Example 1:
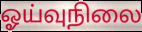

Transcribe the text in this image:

ஓய்வுநிலை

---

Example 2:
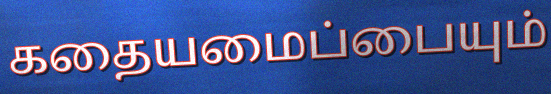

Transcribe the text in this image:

கதையமைப்பையும்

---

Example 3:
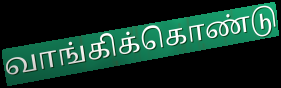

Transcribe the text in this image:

வாங்கிக்கொண்டு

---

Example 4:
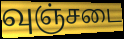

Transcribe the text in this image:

வுஞ்சடை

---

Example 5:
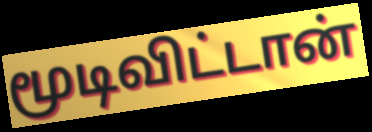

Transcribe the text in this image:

மூடிவிட்டான்